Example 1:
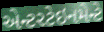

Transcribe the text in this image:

એન્ટરટેઇનમેન્ટે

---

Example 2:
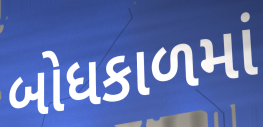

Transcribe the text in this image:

બોધકાળમાં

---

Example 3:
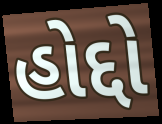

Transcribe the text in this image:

હોદ્દો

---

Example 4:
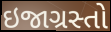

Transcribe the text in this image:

ઇજાગ્રસ્તો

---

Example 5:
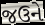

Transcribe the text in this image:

જઉને